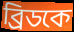
ব্রিডকে